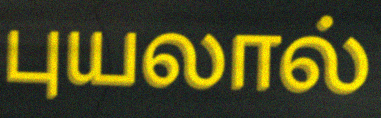
புயலால்